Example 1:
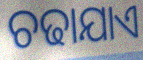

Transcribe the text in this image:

ଚଢାଯାଏ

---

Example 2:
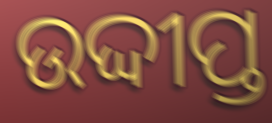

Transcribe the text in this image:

ଉଦ୍ଦୀପ୍ତ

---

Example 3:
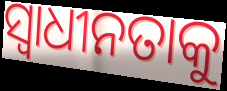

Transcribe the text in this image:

ସ୍ୱାଧୀନତାକୁ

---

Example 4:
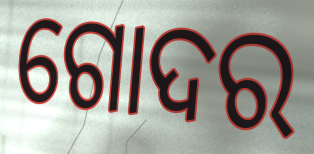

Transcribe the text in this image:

ଗୋଦର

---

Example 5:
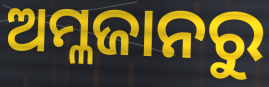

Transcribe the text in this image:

ଅମ୍ଳଜାନରୁ